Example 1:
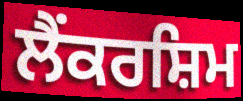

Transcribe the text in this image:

ਲੈਂਕਰਸ਼ਿਮ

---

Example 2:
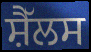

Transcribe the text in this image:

ਸ਼ੈੱਲਸ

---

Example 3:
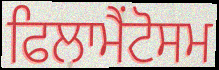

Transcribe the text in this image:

ਫਿਲਾਮੈਂਟੋਸਮ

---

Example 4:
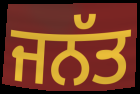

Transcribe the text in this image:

ਜਨੱਤ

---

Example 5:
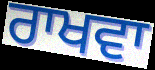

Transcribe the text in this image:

ਰਾਖਵਾ